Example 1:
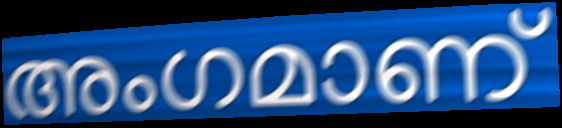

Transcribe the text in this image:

അംഗമാണ്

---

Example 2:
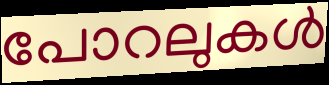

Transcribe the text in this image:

പോറലുകൾ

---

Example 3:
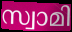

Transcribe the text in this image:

സ്വാമി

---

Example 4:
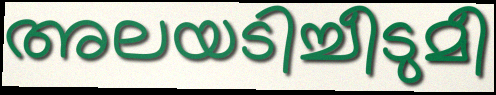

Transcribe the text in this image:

അലയടിച്ചീടുമീ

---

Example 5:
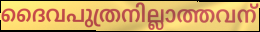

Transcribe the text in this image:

ദൈവപുത്രനില്ലാത്തവന്